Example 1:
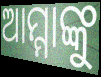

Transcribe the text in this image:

ଆମ୍ମାଙ୍କୁ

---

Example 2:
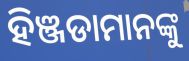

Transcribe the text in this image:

ହିଞ୍ଜଡାମାନଙ୍କୁ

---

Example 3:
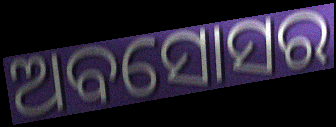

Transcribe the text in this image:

ଅବସୋସର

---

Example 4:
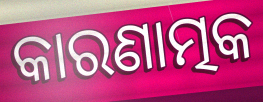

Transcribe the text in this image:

କାରଣାତ୍ମକ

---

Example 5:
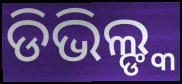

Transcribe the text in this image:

ଡିଭିଲ୍ଙ୍କ